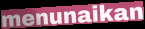
menunaikan